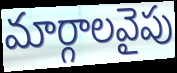
మార్గాలవైపు